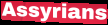
Assyrians